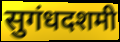
सुगंधदशमी